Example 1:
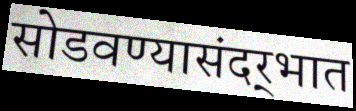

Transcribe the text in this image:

सोडवण्यासंदर्भात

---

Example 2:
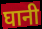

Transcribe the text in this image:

घानी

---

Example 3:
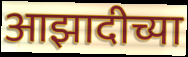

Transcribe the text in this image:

आझादीच्या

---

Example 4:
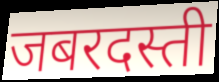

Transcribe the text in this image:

जबरदस्ती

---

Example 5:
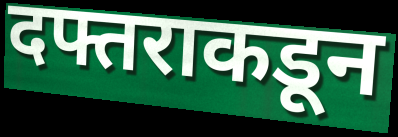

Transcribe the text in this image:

दफ्तराकडून